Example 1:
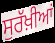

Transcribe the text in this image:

ਸੁਰੱਖ਼ੀਆਂ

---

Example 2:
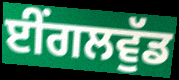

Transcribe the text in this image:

ਈਂਗਲਵੁੱਡ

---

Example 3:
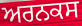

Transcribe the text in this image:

ਅਰਨਕਸ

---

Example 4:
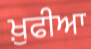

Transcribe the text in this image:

ਖ਼ੁਫੀਆ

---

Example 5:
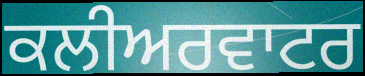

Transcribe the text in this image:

ਕਲੀਅਰਵਾਟਰ